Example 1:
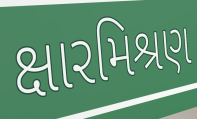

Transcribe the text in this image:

ક્ષારમિશ્રણ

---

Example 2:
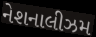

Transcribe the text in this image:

નેશનાલીઝમ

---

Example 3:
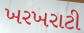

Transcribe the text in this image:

ખરખરાટી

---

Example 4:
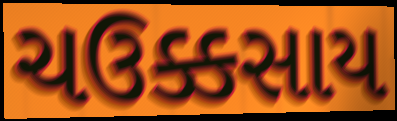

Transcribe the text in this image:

ચઉક્કસાય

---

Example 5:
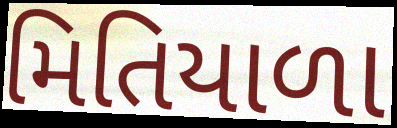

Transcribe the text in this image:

મિતિયાળા